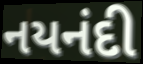
નયનંદી